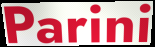
Parini